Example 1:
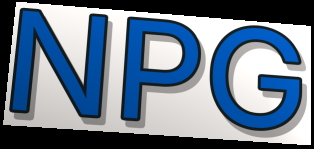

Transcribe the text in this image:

NPG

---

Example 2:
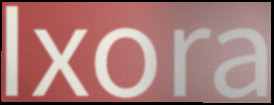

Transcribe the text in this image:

Ixora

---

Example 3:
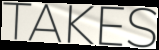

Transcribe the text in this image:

TAKES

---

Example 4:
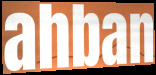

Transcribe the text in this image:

ahban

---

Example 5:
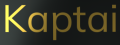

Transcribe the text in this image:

Kaptai